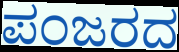
ಪಂಜರದ